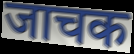
जाचक